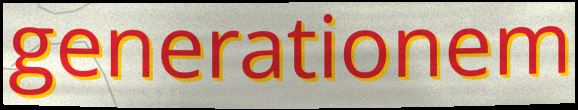
generationem